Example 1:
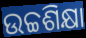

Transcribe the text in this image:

ଉଚ୍ଚଶିକ୍ଷା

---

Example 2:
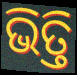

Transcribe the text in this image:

ଭିତ୍ତି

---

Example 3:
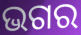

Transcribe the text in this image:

ଭଗର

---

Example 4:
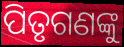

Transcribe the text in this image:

ପିତୃଗଣଙ୍କୁ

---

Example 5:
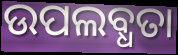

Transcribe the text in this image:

ଉପଲବ୍ଧତା